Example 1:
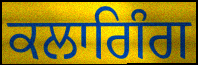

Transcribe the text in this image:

ਕਲਾਗਿੰਗ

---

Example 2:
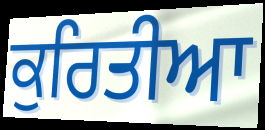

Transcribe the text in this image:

ਕੁਰਿਤੀਆ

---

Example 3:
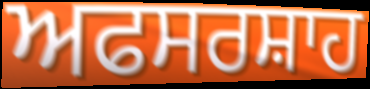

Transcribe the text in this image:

ਅਫਸਰਸ਼ਾਹ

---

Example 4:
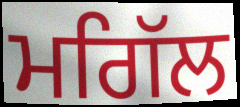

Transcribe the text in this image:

ਮਗਿੱਲ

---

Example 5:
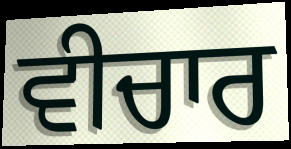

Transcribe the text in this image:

ਵੀਚਾਰ